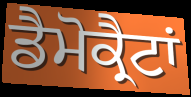
ਡੈਮੋਕ੍ਰੈਟਾਂ